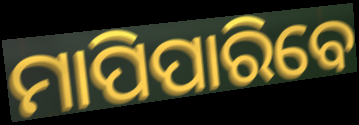
ମାପିପାରିବେ